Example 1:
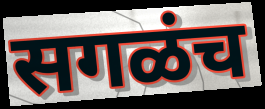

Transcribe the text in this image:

सगळंच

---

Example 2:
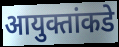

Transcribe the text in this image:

आयुक्तांकडे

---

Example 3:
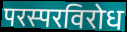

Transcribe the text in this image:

परस्परविरोध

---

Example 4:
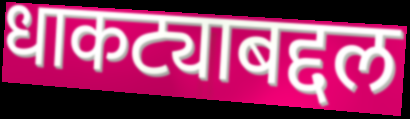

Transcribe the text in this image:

धाकट्याबद्दल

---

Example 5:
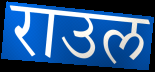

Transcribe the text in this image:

राउल